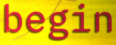
begin